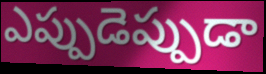
ఎప్పుడెప్పుడా